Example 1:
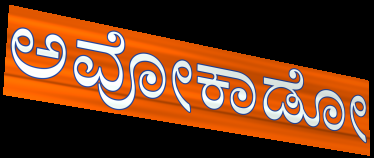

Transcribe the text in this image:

ಅವೋಕಾಡೋ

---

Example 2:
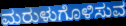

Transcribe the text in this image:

ಮರುಳುಗೊಳಿಸುವ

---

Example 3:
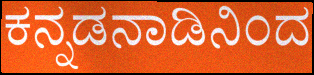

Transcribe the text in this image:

ಕನ್ನಡನಾಡಿನಿಂದ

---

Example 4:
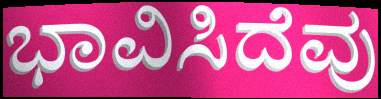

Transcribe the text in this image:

ಭಾವಿಸಿದೆವು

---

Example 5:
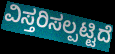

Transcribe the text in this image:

ವಿಸ್ತರಿಸಲ್ಪಟ್ಟಿದೆ